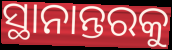
ସ୍ଥାନାନ୍ତରକୁ